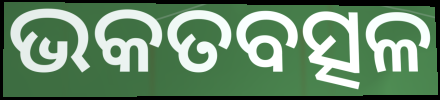
ଭକତବତ୍ସଳ